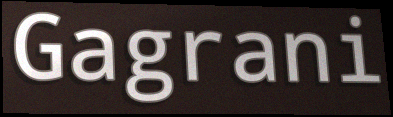
Gagrani